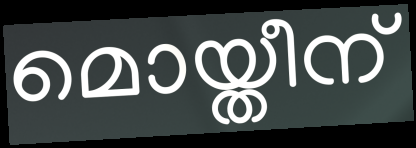
മൊയ്തീന്